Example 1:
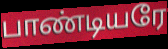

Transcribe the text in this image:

பாண்டியரே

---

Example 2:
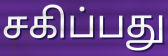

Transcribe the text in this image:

சகிப்பது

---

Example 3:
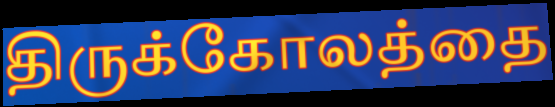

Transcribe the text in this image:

திருக்கோலத்தை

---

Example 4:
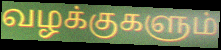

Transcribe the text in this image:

வழக்குகளும்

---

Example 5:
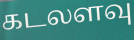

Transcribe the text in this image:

கடலளவு